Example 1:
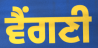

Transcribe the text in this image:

ਵੈਂਗਣੀ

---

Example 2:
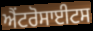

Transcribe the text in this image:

ਐਂਟਰੋਸਾਈਟਸ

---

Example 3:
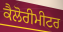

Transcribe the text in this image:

ਕੈਲੋਰੀਮੀਟਰ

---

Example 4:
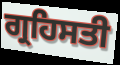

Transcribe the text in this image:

ਗ੍ਰਹਿਸਤੀ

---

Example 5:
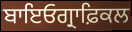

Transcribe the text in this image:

ਬਾਇਓਗ੍ਰਾਫ਼ਿਕਲ